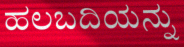
ಹಲಬದಿಯನ್ನು